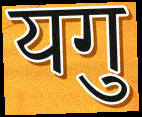
यगु